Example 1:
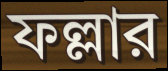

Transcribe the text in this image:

ফল্লার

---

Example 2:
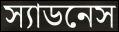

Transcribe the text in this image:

স্যাডনেস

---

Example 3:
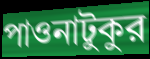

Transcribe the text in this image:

পাওনাটুকুর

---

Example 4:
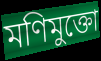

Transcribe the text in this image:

মণিমুক্তো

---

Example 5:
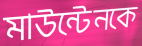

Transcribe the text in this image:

মাউন্টেনকে